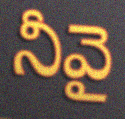
నీవై